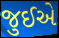
જુઈએ